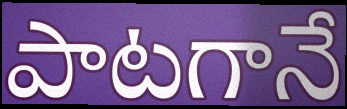
పాటగానే